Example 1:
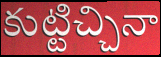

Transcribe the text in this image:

కుట్టిచ్చినా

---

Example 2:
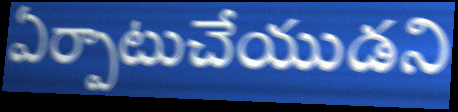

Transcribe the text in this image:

ఏర్పాటుచేయుడని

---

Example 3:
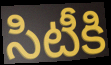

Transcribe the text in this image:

సిటీకి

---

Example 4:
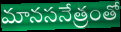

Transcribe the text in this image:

మానసనేత్రంతో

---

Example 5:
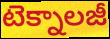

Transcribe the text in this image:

టెక్నాలజీ